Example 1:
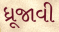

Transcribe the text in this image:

ધ્રૂજાવી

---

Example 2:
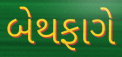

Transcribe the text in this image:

બેથફાગે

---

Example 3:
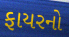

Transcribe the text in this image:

ફાયરનો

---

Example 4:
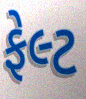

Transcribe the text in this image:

ફેલ્ટ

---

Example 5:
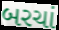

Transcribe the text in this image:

બરચાં